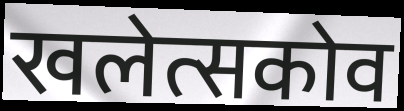
खलेत्सकोव